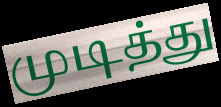
முடித்து